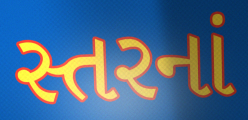
સ્તરનાં